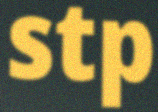
stp